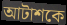
আটাশকে